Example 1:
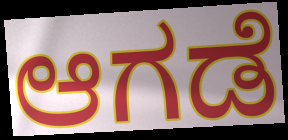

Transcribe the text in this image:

ಆಗಡೆ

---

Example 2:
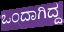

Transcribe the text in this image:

ಒಂದಾಗಿದ್ದ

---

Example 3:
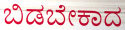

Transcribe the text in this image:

ಬಿಡಬೇಕಾದ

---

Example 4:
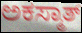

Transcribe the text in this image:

ಅಕಸ್ಮಾತ್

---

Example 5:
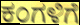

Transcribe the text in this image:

ಕಂಗಳಿಗೆ